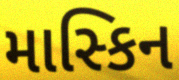
માસ્કિન